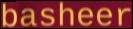
basheer